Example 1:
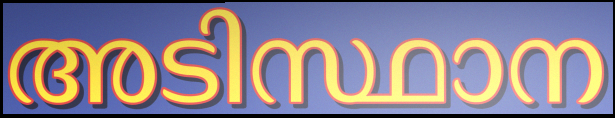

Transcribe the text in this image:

അടിസ്ഥാന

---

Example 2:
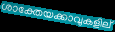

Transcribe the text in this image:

ശാക്തേയക്കാവുകളില്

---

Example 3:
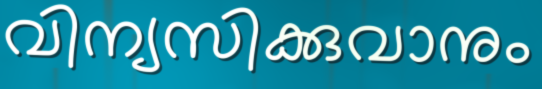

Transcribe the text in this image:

വിന്യസിക്കുവാനും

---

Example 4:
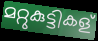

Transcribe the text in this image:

മറ്റുകുട്ടികള്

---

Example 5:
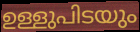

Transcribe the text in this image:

ഉള്ളുപിടയും